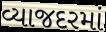
વ્યાજદરમાં